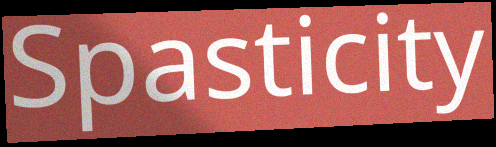
Spasticity